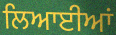
ਲਿਆਈਆਂ